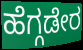
ಹೆಗ್ಗಡೇರ